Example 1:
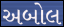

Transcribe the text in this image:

અબોલ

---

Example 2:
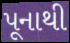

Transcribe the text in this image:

પૂનાથી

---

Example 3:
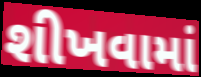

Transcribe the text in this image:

શીખવામાં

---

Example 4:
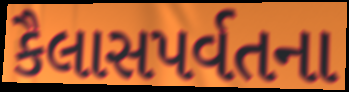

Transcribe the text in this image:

કૈલાસપર્વતના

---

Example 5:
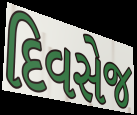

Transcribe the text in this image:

દિવસેજ